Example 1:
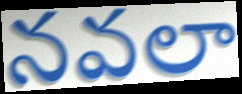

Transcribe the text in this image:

నవలా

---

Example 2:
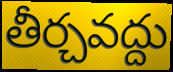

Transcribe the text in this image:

తీర్చవద్దు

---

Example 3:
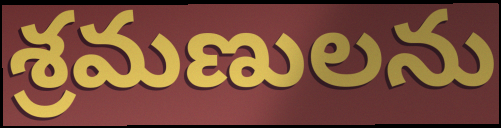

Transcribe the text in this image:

శ్రమణులను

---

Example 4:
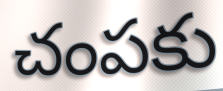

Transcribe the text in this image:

చంపకు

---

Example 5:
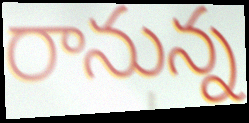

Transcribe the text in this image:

రానున్న